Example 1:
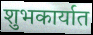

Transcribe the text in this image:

शुभकार्यात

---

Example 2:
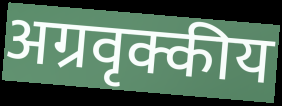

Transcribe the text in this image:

अग्रवृक्कीय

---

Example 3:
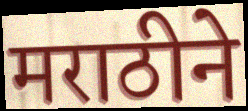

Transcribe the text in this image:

मराठीने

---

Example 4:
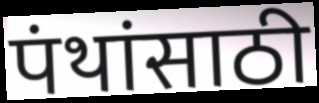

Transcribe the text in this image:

पंथांसाठी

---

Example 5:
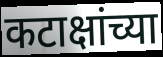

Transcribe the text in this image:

कटाक्षांच्या